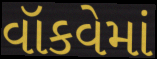
વૉકવેમાં